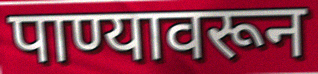
पाण्यावरून